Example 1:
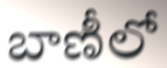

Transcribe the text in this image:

బాణీలో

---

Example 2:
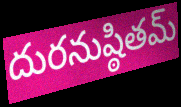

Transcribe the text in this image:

దురనుష్ఠితమ్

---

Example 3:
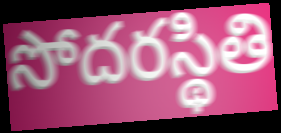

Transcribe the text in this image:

సోదరస్థితి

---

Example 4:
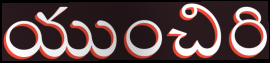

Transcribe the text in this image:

యుంచిరి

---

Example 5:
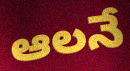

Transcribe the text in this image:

ఆలనే